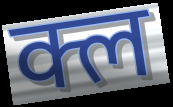
क्ल